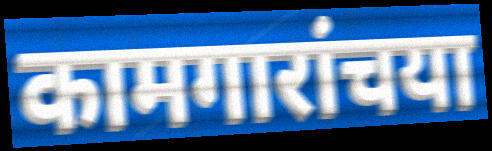
कामगारांचया